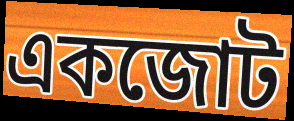
একজোট